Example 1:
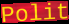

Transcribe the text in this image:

Polit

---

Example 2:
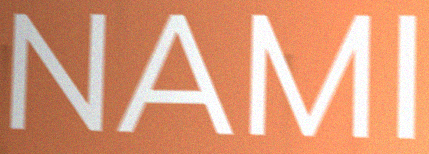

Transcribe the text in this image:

NAMI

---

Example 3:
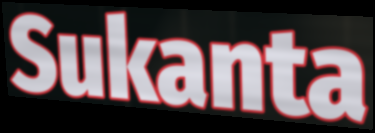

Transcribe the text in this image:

Sukanta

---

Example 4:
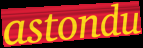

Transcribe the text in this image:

astondu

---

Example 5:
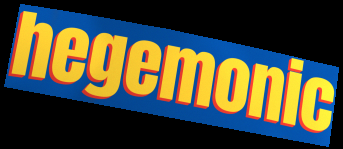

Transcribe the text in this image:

hegemonic